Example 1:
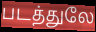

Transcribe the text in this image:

படத்துலே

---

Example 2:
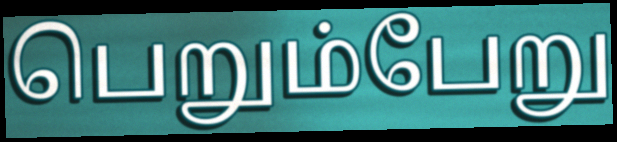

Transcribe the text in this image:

பெறும்பேறு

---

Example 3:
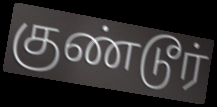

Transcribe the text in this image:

குண்டூர்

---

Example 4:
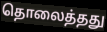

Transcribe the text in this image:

தொலைத்தது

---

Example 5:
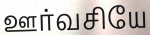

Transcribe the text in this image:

ஊர்வசியே